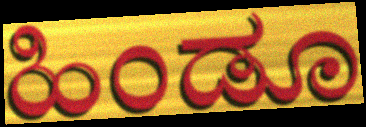
ಹಿಂಡೂ